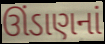
ઊંડાણનાં